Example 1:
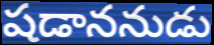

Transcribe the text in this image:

షడాననుడు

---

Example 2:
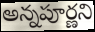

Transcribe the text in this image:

అన్నపూర్ణని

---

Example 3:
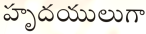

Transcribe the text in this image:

హృదయులుగా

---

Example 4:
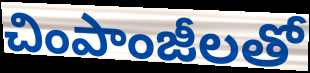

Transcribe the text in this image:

చింపాంజీలతో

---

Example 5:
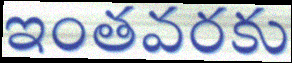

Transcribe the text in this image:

ఇంతవరకు